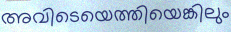
അവിടെയെത്തിയെങ്കിലും